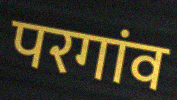
परगांव